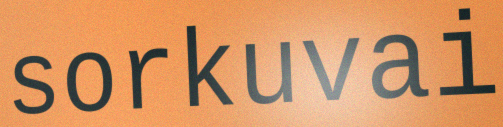
sorkuvai